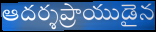
ఆదర్శప్రాయుడైన